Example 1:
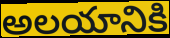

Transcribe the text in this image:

అలయానికి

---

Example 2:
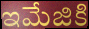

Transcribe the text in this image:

ఇమేజికి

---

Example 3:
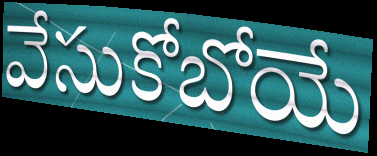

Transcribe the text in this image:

వేసుకోబోయే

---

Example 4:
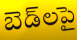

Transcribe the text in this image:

బెడ్‌లపై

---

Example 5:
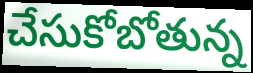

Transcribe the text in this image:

చేసుకోబోతున్న